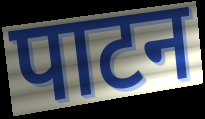
पाटन